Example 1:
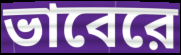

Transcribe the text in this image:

ভাবেরে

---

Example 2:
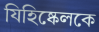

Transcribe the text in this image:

যিহিষ্কেলকে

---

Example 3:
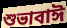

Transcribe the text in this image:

শুভাবাঈ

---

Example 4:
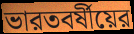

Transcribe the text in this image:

ভারতবর্ষীয়ের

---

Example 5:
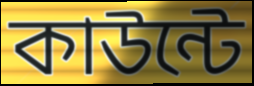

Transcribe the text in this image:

কাউন্টে